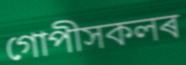
গোপীসকলৰ